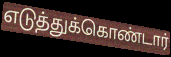
எடுத்துக்கொண்டார்